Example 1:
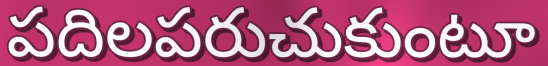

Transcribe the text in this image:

పదిలపరుచుకుంటూ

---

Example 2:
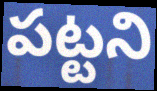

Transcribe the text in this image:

పట్టని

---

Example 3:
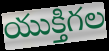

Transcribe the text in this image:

యుక్తిగల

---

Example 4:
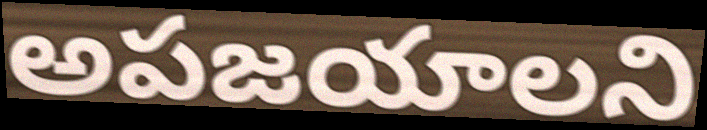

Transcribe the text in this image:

అపజయాలని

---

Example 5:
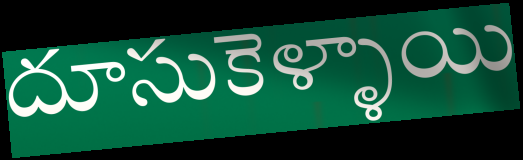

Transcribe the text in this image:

దూసుకెళ్ళాయి